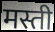
मस्ती